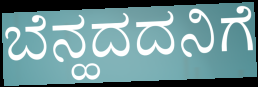
ಬೆನ್ಹದದನಿಗೆ